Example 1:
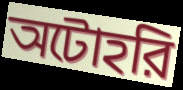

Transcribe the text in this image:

অটোহরি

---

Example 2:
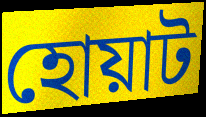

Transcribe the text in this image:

হোয়াট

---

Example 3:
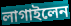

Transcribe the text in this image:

লাগাইলেন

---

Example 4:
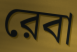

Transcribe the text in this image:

রেবা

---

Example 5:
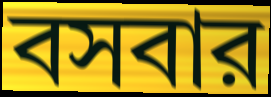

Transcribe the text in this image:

বসবার